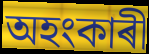
অহংকাৰী